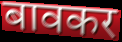
बावकर